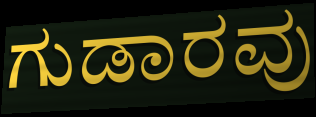
ಗುಡಾರವು